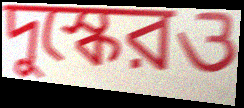
দুস্কেরও